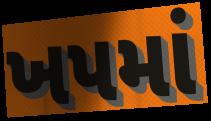
ખપમાં